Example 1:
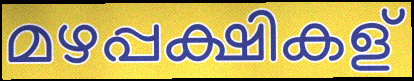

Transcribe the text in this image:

മഴപ്പക്ഷികള്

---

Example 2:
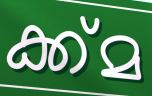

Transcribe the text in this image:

ക്ക്മ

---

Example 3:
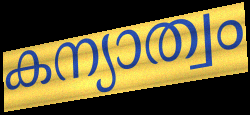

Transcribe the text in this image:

കന്യാത്വം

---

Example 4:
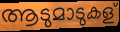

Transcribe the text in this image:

ആടുമാടുകള്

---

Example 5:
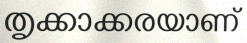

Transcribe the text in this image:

തൃക്കാക്കരയാണ്